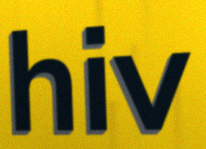
hiv